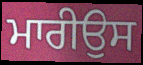
ਮਾਰੀਉਸ